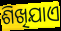
ଶିଖିଯାଏ